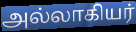
அல்லாகியர்